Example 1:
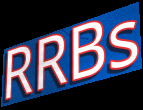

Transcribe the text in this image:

RRBs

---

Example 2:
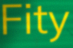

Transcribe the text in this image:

Fity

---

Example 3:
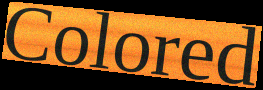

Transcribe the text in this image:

Colored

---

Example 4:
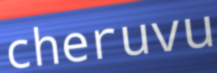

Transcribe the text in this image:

cheruvu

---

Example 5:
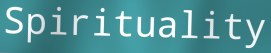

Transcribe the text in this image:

Spirituality